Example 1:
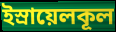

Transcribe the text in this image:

ইস্রায়েলকূল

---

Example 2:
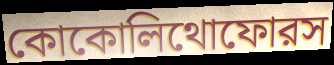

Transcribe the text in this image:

কোকোলিথোফোরস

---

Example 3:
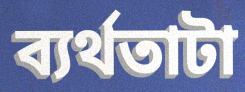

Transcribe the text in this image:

ব্যর্থতাটা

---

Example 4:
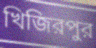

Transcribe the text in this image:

খিজিরপুর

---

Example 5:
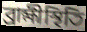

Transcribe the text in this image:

ব্রাহ্মীস্থিতি